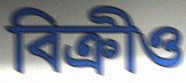
বিক্ৰীও